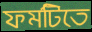
ফর্মটিতে